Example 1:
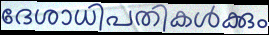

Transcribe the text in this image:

ദേശാധിപതികൾക്കും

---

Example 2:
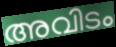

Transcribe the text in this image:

അവിടം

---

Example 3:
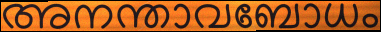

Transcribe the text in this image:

അനന്താവബോധം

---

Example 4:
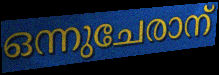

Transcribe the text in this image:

ഒന്നുചേരാന്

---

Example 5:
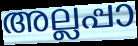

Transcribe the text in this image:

അല്ലപ്പാ